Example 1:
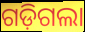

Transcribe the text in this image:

ଗଡ଼ିଗଲା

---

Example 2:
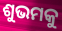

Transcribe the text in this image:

ଶୁଭମକୁ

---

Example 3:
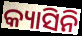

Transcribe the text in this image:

କ୍ୟାସିନି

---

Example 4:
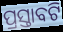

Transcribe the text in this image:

ପ୍ରସ୍ତାବଟି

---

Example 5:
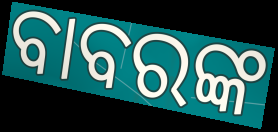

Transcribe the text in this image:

ବାବରଙ୍କ